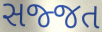
સજ્જત